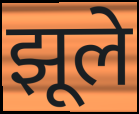
झूले